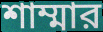
শাম্মার